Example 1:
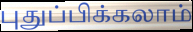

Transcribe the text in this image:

புதுப்பிக்கலாம்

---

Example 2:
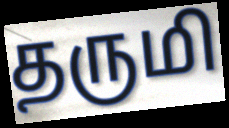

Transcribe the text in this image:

தருமி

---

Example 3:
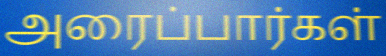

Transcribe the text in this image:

அரைப்பார்கள்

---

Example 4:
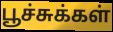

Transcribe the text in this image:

பூச்சுக்கள்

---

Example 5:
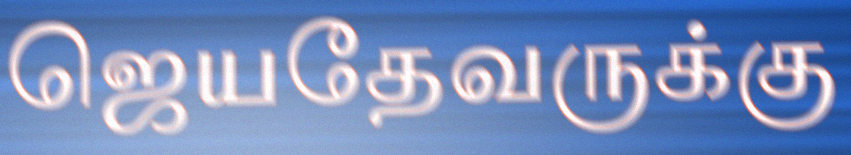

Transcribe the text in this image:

ஜெயதேவருக்கு